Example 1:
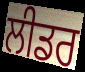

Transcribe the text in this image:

ਲੀਡਰ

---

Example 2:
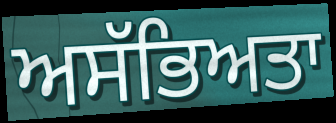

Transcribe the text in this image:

ਅਸੱਭਿਅਤਾ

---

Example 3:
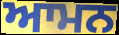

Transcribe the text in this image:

ਆਮਨ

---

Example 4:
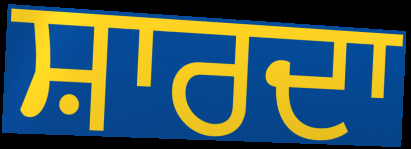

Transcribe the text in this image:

ਸ਼ਾਰਦਾ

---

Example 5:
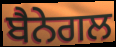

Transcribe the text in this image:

ਬੈਨੇਗਲ